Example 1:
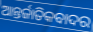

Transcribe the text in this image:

ଆନ୍ତର୍ଜାତିକବାଦର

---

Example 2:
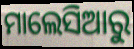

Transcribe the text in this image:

ମାଲେସିଆରୁ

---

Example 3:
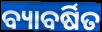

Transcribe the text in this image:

ବ୍ୟାବର୍ଷିତ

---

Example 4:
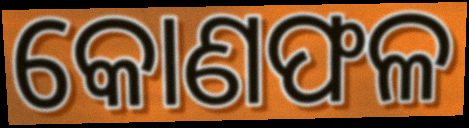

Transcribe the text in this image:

କୋଣଫଳ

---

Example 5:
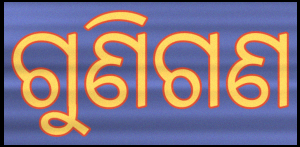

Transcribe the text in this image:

ଗୁଣିଗଣ